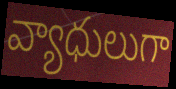
వ్యాధులుగా